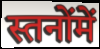
स्तनोंमें